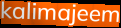
kalimajeem